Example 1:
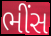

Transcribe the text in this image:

ભીંસ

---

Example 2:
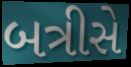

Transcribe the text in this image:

બત્રીસે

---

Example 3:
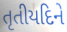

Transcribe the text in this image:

તૃતીયદિને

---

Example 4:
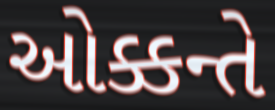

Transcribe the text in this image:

ઓક્કન્તે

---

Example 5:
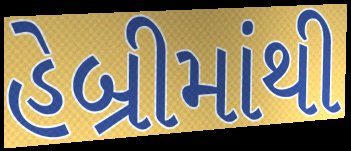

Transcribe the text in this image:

હેબ્રીમાંથી